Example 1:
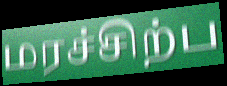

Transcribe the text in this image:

மரச்சிற்ப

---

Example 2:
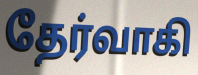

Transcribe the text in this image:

தேர்வாகி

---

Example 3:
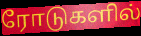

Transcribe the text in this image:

ரோடுகளில்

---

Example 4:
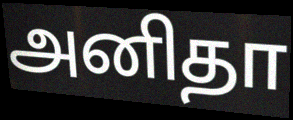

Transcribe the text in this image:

அனிதா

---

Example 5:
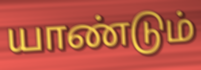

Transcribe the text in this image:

யாண்டும்